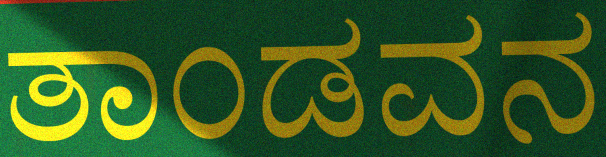
ತಾಂಡವನ